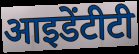
आइडेंटीटी